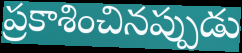
ప్రకాశించినప్పుడు